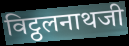
विट्ठलनाथजी